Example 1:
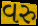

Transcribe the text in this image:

વરુ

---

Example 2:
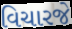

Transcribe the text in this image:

વિચારજે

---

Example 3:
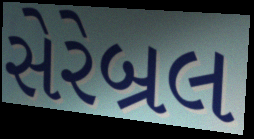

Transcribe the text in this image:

સેરેબ્રલ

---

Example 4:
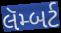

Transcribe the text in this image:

લૅમ્બર્ટ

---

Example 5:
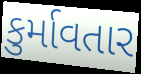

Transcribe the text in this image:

કુર્માવતાર